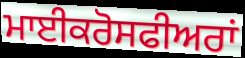
ਮਾਈਕਰੋਸਫੀਅਰਾਂ